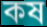
কষ